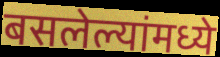
बसलेल्यांमध्ये